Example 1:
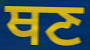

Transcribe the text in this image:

ਥਣ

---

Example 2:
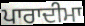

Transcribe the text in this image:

ਪਾਰਾਦੀਮਾ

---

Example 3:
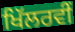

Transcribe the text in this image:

ਖਿੱਲਰਵੀਂ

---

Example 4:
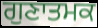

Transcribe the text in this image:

ਗੁਣਾਤਮਕ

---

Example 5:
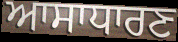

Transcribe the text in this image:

ਆਸਾਧਾਰਣ